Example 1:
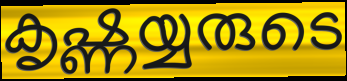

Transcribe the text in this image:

കൃഷ്ണയ്യരുടെ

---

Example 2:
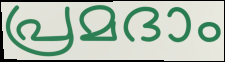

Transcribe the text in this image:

പ്രമദാം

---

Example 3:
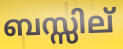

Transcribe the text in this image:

ബസ്സില്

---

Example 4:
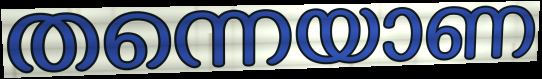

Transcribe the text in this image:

തന്നെയാണ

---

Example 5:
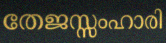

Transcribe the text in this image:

തേജസ്സംഹാരി